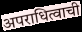
अपराधित्वाची